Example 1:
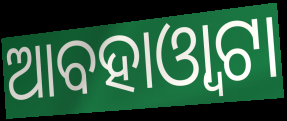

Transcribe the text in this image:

ଆବହାଓ୍ୱାଟା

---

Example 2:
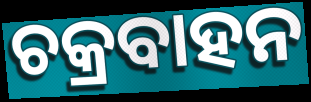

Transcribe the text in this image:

ଚକ୍ରବାହନ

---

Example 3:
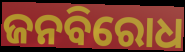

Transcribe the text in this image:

ଜନବିରୋଧ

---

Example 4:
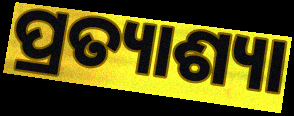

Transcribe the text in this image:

ପ୍ରତ୍ୟାଶ୍ୟା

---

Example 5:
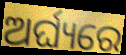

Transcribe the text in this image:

ଅର୍ଘ୍ୟରେ